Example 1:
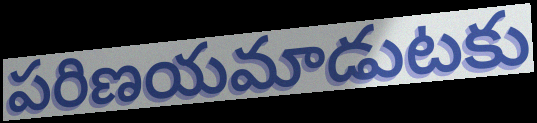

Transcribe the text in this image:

పరిణయమాడుటకు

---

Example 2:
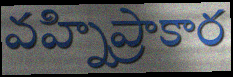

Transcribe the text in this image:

వహ్నిప్రాకార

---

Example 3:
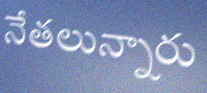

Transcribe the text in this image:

నేతలున్నారు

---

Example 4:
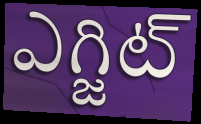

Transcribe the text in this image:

ఎగ్జిట్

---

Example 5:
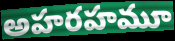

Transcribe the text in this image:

అహరహమూ